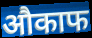
औकाफ